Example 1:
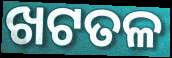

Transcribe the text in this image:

ଖଟତଳ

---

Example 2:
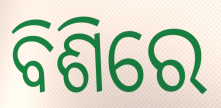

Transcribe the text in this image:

ବିଶିରେ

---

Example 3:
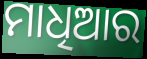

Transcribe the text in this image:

ମାଧିଆର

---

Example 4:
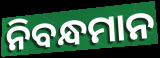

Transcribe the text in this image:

ନିବନ୍ଧମାନ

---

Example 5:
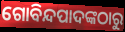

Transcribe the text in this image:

ଗୋବିନ୍ଦପାଦଙ୍କଠାରୁ